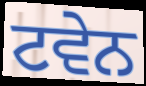
ਟਵੇਨ